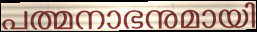
പത്മനാഭനുമായി